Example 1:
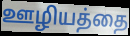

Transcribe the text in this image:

ஊழியத்தை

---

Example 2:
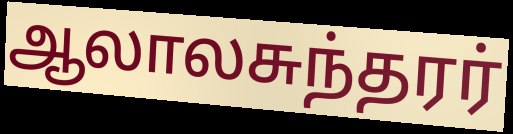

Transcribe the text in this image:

ஆலாலசுந்தரர்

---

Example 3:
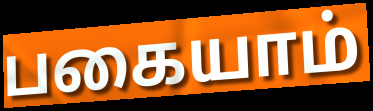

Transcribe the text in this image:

பகையாம்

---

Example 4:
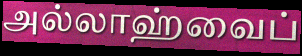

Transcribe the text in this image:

அல்லாஹ்வைப்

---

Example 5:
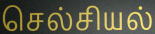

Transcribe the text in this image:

செல்சியல்